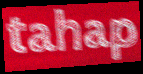
tahap